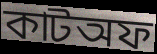
কাটঅফ